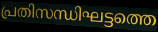
പ്രതിസന്ധിഘട്ടത്തെ